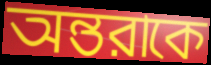
অন্তরাকে